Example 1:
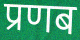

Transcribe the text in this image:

प्रणब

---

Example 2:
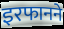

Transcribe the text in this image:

इरफानने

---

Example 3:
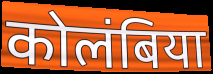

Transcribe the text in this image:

कोलंबिया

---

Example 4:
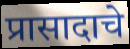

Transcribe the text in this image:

प्रासादाचे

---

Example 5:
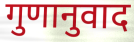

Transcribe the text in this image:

गुणानुवाद